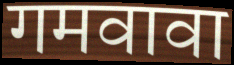
गमवावा